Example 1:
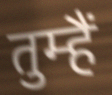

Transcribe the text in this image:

तुम्हैं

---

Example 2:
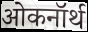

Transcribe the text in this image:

ओकनॉर्थ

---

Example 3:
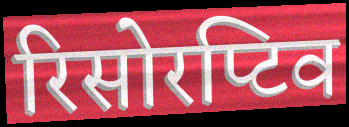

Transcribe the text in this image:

रिसोरप्टिव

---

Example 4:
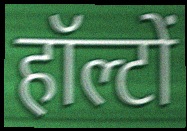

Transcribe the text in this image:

हॉल्टों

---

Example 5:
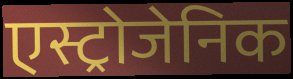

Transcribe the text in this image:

एस्ट्रोजेनिक